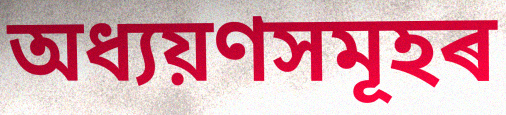
অধ্যয়ণসমূহৰ